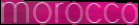
morocco